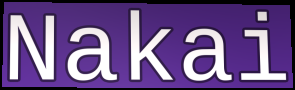
Nakai